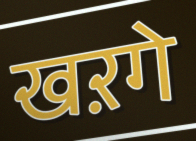
खऱगे